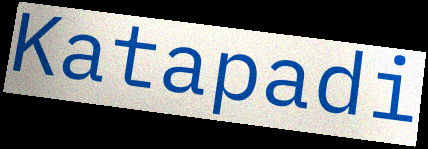
Katapadi